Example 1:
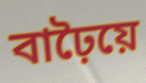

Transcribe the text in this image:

বাঢ়ৈয়ে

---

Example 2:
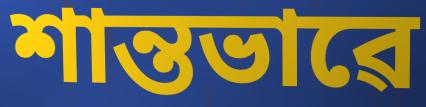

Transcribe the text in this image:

শান্তভাৱে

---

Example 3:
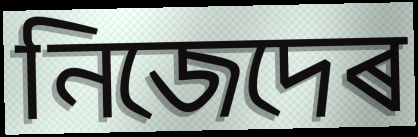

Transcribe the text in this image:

নিজেদেৰ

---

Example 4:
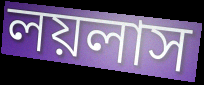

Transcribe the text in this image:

লয়লাস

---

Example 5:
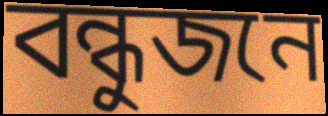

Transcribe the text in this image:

বন্ধুজনে